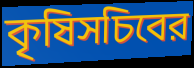
কৃষিসচিবের